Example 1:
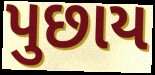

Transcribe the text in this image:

પુછાય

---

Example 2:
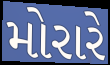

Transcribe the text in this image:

મોરારે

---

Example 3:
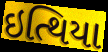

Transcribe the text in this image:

ઇત્થિયા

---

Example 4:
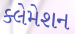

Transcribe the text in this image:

ક્લેમેશન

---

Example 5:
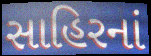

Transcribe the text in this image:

સાહિરનાં